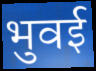
भुवई